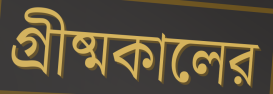
গ্রীষ্মকালের